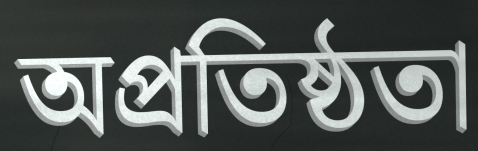
অপ্রতিষ্ঠতা